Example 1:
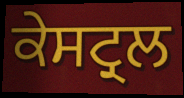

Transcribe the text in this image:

ਕੇਸਟ੍ਰਲ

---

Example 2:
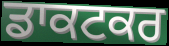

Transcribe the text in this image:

ਡਾਕਟਕਰ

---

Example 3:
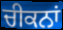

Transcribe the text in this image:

ਚੀਕਨਾਂ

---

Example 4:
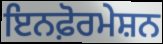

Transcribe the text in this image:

ਇਨਫ਼ੋਰਮੇਸ਼ਨ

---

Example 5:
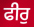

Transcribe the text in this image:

ਫੀਰੁ